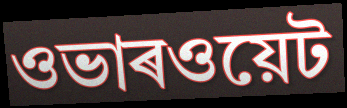
ওভাৰওয়েট